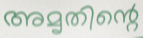
അമൃതിന്റെ